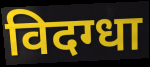
विदग्धा